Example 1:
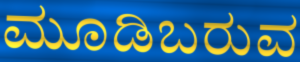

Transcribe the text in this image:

ಮೂಡಿಬರುವ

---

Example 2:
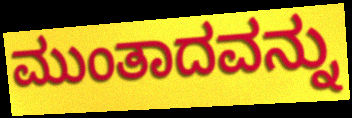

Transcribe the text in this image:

ಮುಂತಾದವನ್ನು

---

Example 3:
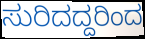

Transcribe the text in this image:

ಸುರಿದದ್ದರಿಂದ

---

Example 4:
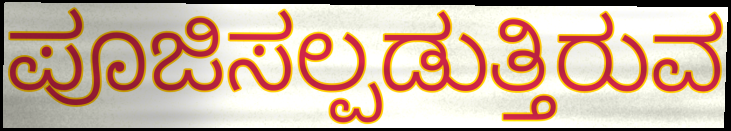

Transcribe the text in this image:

ಪೂಜಿಸಲ್ಪಡುತ್ತಿರುವ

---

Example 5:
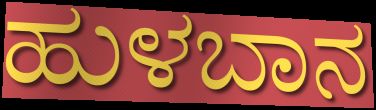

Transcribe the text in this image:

ಹುಳಬಾನ